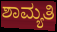
ಶಾಮ್ಯತಿ